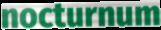
nocturnum